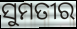
ସୁମତୀର